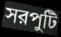
সরপুটি